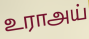
உராஅய்